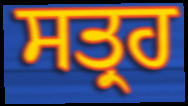
ਸਤ੍ਰਹ